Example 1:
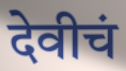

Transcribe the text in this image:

देवीचं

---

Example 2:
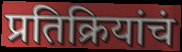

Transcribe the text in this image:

प्रतिक्रियांचं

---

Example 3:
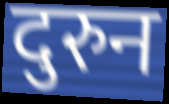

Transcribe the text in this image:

दुरुन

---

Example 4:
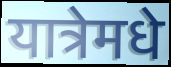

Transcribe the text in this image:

यात्रेमधे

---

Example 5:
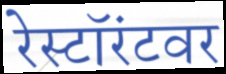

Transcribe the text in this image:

रेस्टॉरंटवर